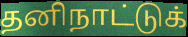
தனிநாட்டுக்